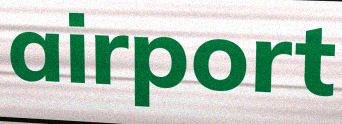
airport